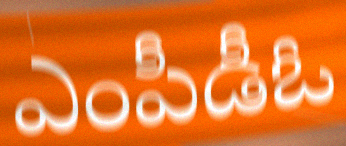
ఎంపీడీఓ